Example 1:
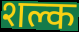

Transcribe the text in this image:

शल्क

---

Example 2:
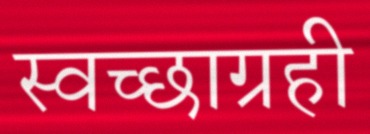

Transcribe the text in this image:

स्वच्छाग्रही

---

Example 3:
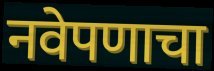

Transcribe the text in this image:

नवेपणाचा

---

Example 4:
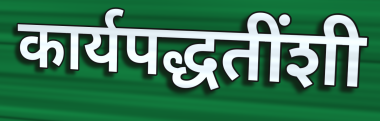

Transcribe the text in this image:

कार्यपद्धतींशी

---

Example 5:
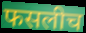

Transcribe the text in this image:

फसलीच